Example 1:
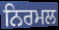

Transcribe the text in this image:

ਨਿਰਮਲ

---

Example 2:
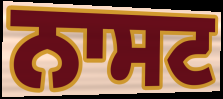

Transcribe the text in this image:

ਨਾਸਟ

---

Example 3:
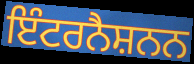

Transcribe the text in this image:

ਇੰਟਰਨੈਸ਼ਨਨ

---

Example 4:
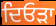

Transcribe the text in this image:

ਦਿਓੜਾ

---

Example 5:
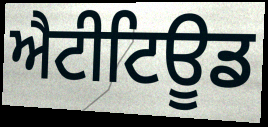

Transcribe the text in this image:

ਐਟੀਟਿਊਡ